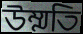
উম্মতি